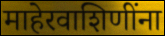
माहेरवाशिणींना